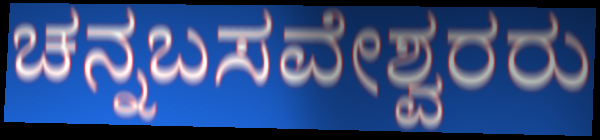
ಚನ್ನಬಸವೇಶ್ವರರು